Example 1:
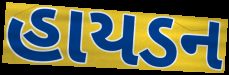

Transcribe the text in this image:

હાયડન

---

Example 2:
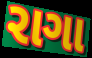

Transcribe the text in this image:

રાગા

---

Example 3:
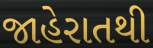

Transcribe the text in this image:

જાહેરાતથી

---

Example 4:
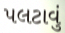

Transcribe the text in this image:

પલટાવું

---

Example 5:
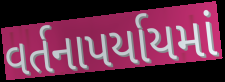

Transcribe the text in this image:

વર્તનાપર્યાયમાં